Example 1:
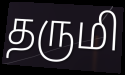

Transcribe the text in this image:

தருமி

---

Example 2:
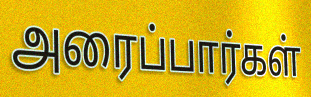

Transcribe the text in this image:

அரைப்பார்கள்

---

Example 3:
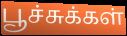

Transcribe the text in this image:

பூச்சுக்கள்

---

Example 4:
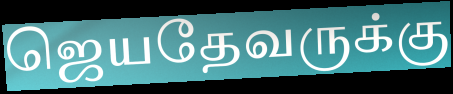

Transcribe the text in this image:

ஜெயதேவருக்கு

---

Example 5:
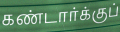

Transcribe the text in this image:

கண்டார்க்குப்